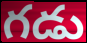
గడు